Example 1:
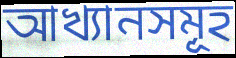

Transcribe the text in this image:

আখ্যানসমূহ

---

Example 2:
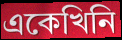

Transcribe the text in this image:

একেখিনি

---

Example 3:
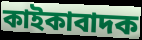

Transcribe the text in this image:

কাইকাবাদক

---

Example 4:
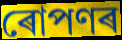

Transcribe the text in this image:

ৰোপণৰ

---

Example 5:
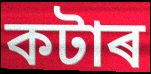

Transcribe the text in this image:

কটাৰ